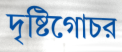
দৃষ্টিগোচর